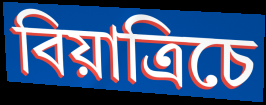
বিয়াত্রিচে